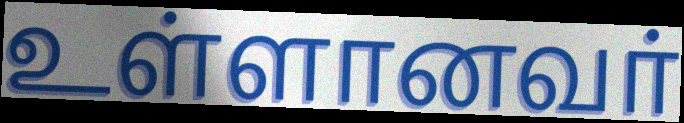
உள்ளானவர்